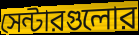
সেন্টারগুলোর